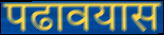
पढावयास